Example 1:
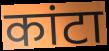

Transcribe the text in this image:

कांटा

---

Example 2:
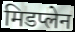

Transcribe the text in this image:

मिडप्लेन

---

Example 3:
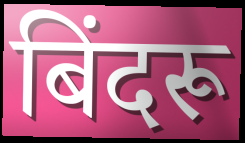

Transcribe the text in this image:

बिंदरू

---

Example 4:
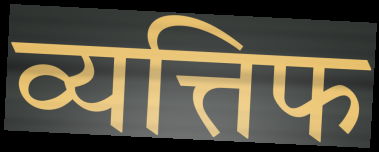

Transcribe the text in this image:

व्यत्तिफ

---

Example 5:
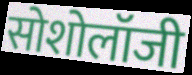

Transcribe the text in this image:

सोशोलॉजी